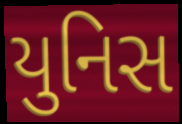
યુનિસ